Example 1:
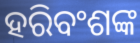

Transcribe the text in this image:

ହରିବଂଶଙ୍କ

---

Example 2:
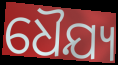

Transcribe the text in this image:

ଧୈଯ୍ଯ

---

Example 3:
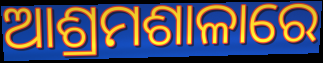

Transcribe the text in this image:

ଆଶ୍ରମଶାଳାରେ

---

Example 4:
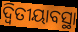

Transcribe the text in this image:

ଦ୍ବିତୀୟାବସ୍ଥା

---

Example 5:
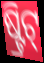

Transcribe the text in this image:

ଷ୍ଟ୍ରିଟ୍